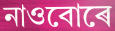
নাওবোৰে